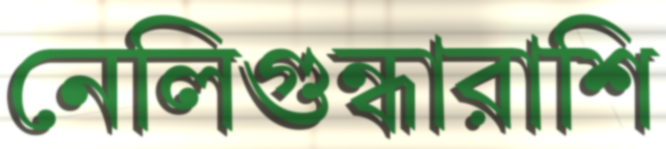
নেলিগুন্ধারাশি